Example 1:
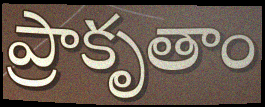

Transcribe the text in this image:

ప్రాకృతాం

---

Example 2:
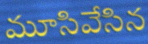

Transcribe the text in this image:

మూసివేసిన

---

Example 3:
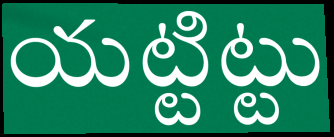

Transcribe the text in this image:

యట్టిట్టు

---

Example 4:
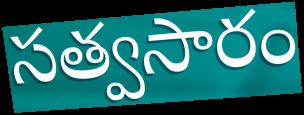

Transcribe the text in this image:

సత్వసారం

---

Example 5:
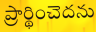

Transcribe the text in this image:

ప్రార్థించెదను